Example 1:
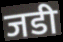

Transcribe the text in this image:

जडी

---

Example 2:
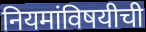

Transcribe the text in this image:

नियमांविषयीची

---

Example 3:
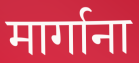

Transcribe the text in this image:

मार्गाना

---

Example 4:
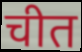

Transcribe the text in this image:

चीत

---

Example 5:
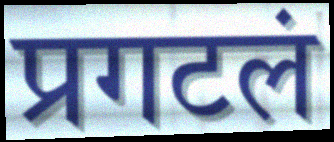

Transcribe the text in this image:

प्रगटलं